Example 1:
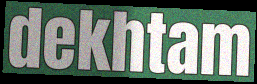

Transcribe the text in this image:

dekhtam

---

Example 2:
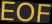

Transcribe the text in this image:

EOF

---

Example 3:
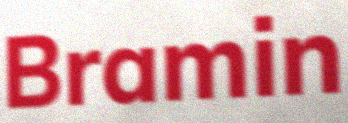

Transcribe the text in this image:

Bramin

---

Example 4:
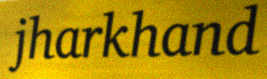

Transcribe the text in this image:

jharkhand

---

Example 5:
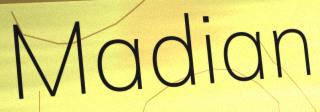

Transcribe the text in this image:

Madian